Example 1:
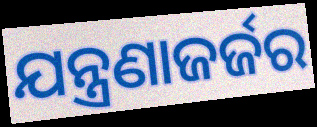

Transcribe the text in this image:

ଯନ୍ତ୍ରଣାଜର୍ଜର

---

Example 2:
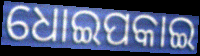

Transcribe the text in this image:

ଧୋଇପକାଇ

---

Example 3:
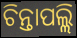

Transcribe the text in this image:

ଚିନ୍ତାପଲ୍ଲି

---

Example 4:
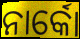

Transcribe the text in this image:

ନାର୍କୋ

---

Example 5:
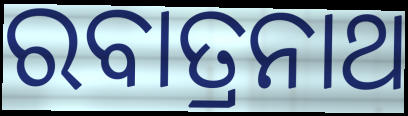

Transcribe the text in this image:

ରବାତ୍ରନାଥ